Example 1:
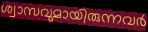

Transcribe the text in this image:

ശ്വാസവുമായിരുന്നവർ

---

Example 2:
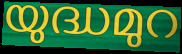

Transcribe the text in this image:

യുദ്ധമുറ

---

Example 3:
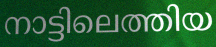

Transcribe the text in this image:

നാട്ടിലെത്തിയ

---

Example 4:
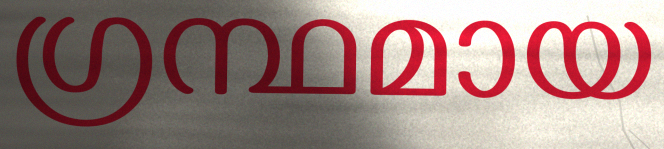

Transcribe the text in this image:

ഗ്രന്ഥമായ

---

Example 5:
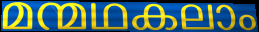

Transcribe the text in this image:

മന്മഥകലാം